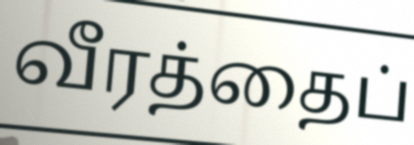
வீரத்தைப்